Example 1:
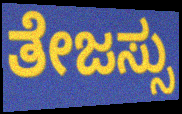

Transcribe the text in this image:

ತೇಜಸ್ಸು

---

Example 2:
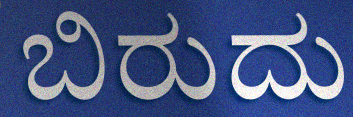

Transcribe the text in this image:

ಬಿರುದು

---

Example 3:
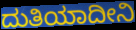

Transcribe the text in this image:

ದುತಿಯಾದೀನಿ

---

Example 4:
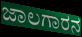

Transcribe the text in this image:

ಜಾಲಗಾರನ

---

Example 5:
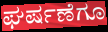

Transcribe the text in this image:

ಘರ್ಷಣೆಗೂ